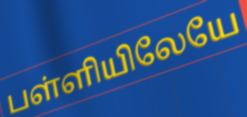
பள்ளியிலேயே